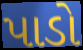
પાડો